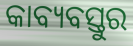
କାବ୍ୟବସ୍ତୁର